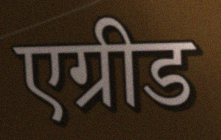
एग्रीड